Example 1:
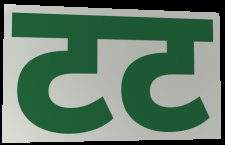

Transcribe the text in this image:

टट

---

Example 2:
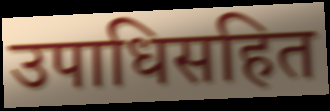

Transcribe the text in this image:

उपाधिसहित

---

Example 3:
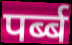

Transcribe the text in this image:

पर्ब्ब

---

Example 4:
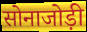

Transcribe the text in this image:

सोनाजोड़ी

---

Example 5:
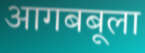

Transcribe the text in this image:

आगबबूला